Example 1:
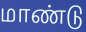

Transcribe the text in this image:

மாண்டு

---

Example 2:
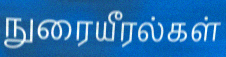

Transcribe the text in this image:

நுரையீரல்கள்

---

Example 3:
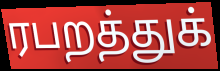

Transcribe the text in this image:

ரபறத்துக்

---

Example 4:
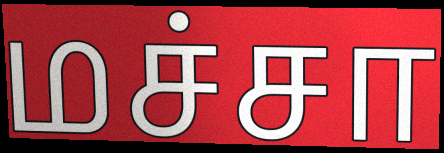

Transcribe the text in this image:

மச்சா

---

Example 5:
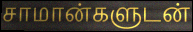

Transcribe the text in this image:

சாமான்களுடன்